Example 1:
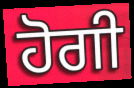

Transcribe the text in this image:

ਹੋਗੀ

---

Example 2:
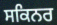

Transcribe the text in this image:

ਸਕਿਨਰ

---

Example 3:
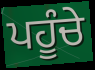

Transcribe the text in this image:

ਪਹੂੰਚੇ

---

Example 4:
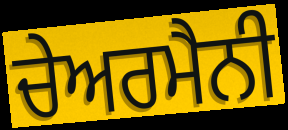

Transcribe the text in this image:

ਚੇਅਰਮੈਨੀ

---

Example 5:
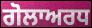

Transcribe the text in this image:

ਗੋਲਾਅਰਧ